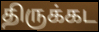
திருக்கட